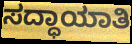
ಸದ್ಧಾಯಾತಿ